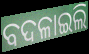
ବଦଳାଇଲି